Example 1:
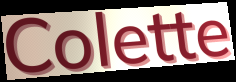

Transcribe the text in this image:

Colette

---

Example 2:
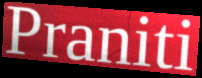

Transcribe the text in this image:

Praniti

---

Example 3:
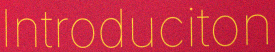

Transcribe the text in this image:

Introduciton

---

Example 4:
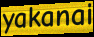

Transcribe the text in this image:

yakanai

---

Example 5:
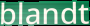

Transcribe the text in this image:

blandt